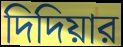
দিদিয়ার